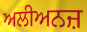
ਅਲੀਅਨਜ਼